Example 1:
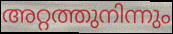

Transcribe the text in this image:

അറ്റത്തുനിന്നും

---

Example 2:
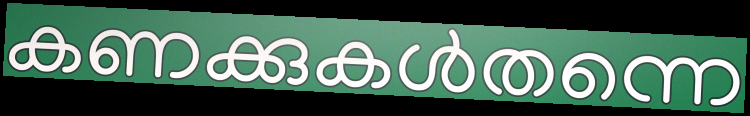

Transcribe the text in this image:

കണക്കുകൾതന്നെ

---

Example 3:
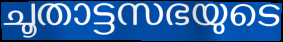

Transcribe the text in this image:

ചൂതാട്ടസഭയുടെ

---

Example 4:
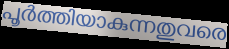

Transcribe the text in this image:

പൂർത്തിയാകുന്നതുവരെ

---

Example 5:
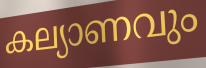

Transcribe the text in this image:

കല്യാണവും